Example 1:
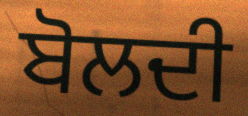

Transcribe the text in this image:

ਬੋਲਦੀ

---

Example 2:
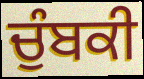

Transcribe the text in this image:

ਚੁੰਬਕੀ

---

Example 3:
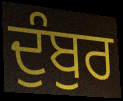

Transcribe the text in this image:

ਦੁੰਬੁਰ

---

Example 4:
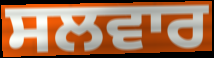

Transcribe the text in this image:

ਸਲਵਾਰ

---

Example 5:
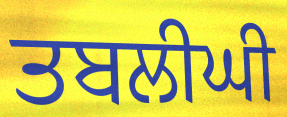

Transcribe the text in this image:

ਤਬਲੀਘੀ